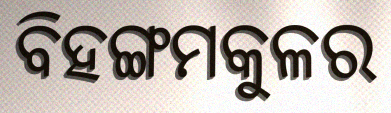
ବିହଙ୍ଗମକୁଳର